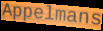
Appelmans